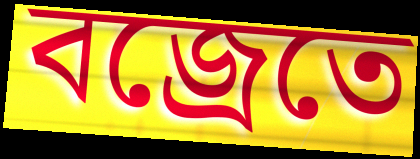
বজ্রেতে